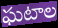
ఘటాల